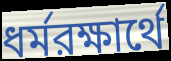
ধর্মরক্ষার্থে